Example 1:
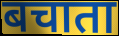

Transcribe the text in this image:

बचाता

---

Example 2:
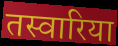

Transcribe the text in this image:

तस्वारिया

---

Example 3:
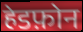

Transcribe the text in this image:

हेडफ़ोन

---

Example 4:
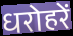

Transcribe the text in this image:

धरोहरें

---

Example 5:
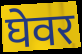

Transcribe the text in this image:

घेवर